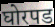
घोरपड